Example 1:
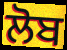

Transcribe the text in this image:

ਲੋਬ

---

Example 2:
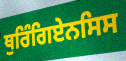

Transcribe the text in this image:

ਥੁਰਿੰਗਿਏਨਸਿਸ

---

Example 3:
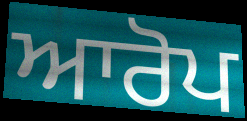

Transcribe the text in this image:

ਆਰੋਪ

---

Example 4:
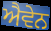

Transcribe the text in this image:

ਐਵੇਨ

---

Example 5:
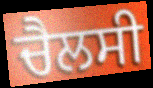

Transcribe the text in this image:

ਚੈਲਸੀ